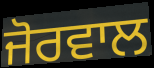
ਜੋਰਵਾਲ